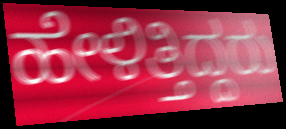
ಹೇಳಿತ್ತಿದ್ದರು